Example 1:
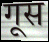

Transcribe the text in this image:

गूस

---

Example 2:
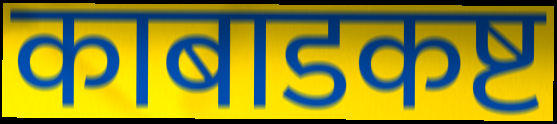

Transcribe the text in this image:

काबाडकष्ट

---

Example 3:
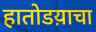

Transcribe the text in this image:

हातोडय़ाचा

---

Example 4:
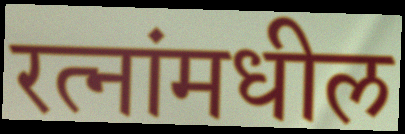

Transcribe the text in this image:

रत्नांमधील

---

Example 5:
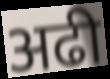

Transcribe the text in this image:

अढी